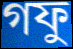
গফু